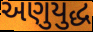
અણુયુદ્ધ